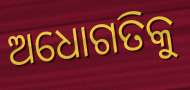
ଅଧୋଗତିକୁ